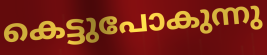
കെട്ടുപോകുന്നു